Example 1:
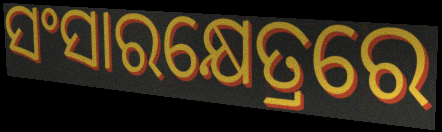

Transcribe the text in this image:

ସଂସାରକ୍ଷେତ୍ରରେ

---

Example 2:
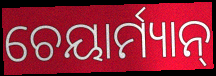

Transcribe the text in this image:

ଚେୟାର୍ମ୍ୟାନ୍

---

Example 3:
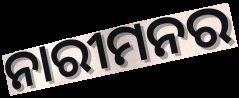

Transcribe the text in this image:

ନାରୀମନର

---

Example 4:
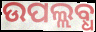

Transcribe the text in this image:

ଉପଲ୍ଲବ୍ଧ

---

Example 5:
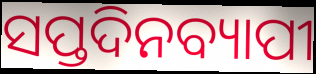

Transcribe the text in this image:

ସପ୍ତଦିନବ୍ୟାପୀ